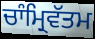
ਚਾੰਮ੍ਰਿਵੱਤਮ